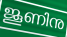
ജൂണിനു